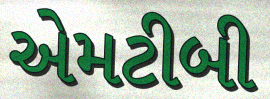
એમટીબી